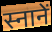
स्नानें